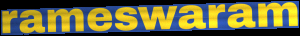
rameswaram